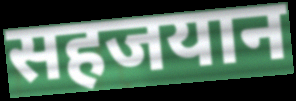
सहजयान